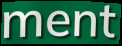
ment